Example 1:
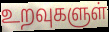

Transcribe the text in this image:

உறவுகளுள்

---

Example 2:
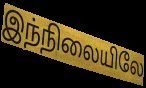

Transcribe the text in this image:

இந்நிலையிலே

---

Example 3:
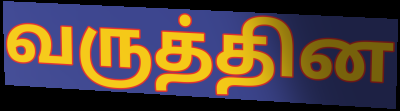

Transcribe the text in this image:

வருத்தின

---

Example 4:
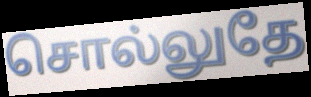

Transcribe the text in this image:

சொல்லுதே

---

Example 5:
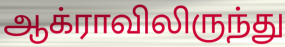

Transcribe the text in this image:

ஆக்ராவிலிருந்து